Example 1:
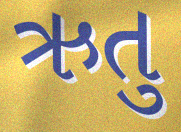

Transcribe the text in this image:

ઋતુ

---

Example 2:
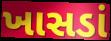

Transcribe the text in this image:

ખાસડાં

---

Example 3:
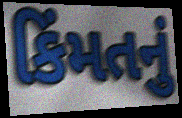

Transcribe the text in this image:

કિંમતનું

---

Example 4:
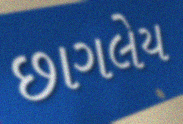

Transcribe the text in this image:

છાગલેય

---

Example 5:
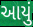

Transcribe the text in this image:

આયું